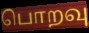
பொறவு